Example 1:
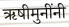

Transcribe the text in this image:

ऋषीमुनींनी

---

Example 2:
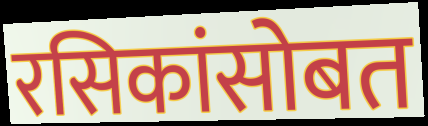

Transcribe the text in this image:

रसिकांसोबत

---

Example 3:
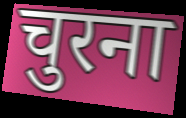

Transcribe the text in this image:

चुरना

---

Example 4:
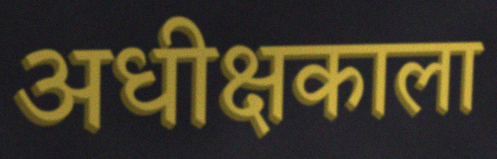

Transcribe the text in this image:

अधीक्षकाला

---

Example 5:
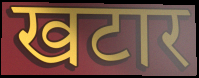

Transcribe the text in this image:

खटार